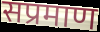
सप्रमाण